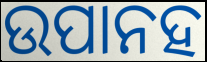
ଉପାନହ